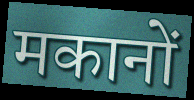
मकानों